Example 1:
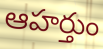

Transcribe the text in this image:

ఆహర్తుం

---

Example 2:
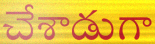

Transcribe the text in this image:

చేశాడుగా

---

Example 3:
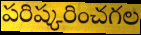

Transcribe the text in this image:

పరిష్కరించగల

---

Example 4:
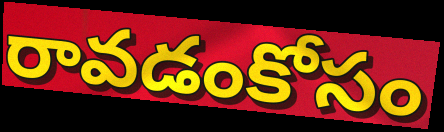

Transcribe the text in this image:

రావడంకోసం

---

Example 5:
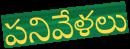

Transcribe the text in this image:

పనివేళలు